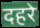
दहरे